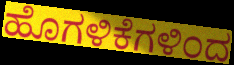
ಹೊಗಳಿಕೆಗಳಿಂದ